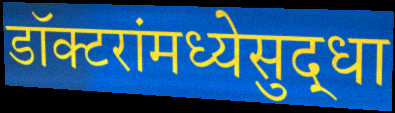
डॉक्टरांमध्येसुद्धा